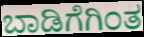
ಬಾಡಿಗೆಗಿಂತ